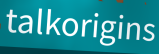
talkorigins